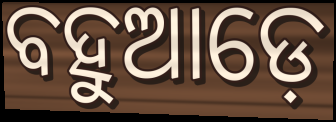
ବହୁଆଡ଼େ